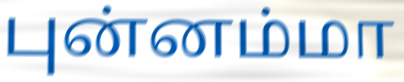
புன்னம்மா